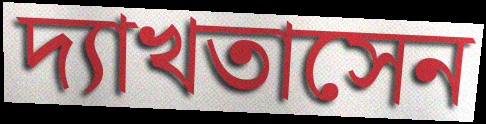
দ্যাখতাসেন